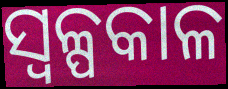
ସ୍ୱଳ୍ପକାଳ